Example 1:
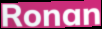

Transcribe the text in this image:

Ronan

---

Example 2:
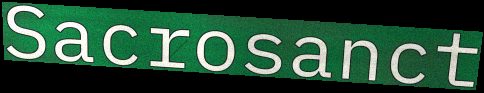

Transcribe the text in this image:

Sacrosanct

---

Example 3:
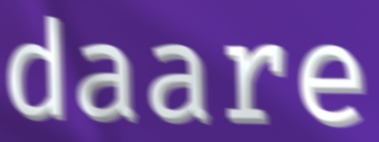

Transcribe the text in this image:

daare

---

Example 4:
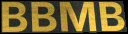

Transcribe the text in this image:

BBMB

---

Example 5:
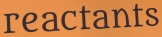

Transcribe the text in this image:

reactants